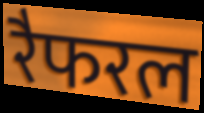
रैफरल